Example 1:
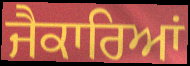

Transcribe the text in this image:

ਜੈਕਾਰਿਆਂ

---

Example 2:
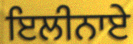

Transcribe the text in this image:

ਇਲੀਨਾਏ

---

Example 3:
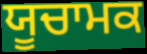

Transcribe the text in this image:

ਯੂਚਾਮਕ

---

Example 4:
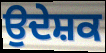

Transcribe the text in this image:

ਉਦੇਸ਼ਕ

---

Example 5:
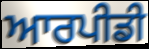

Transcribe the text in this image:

ਆਰਪੀਡੀ